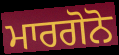
ਮਾਰਗੋਨੋ